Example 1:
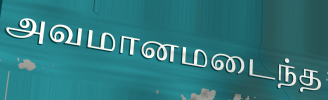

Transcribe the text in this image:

அவமானமடைந்த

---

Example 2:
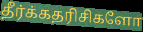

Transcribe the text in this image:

தீர்க்கதரிசிகளோ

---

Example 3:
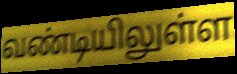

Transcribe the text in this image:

வண்டியிலுள்ள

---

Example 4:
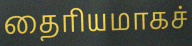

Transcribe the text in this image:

தைரியமாகச்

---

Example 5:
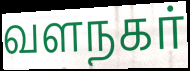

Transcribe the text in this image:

வளநகர்